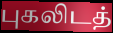
புகலிடத்